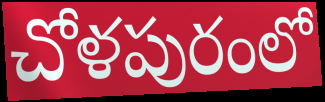
చోళపురంలో